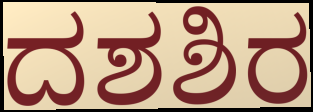
ದಶಶಿರ